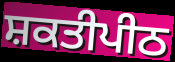
ਸ਼ਕਤੀਪੀਠ